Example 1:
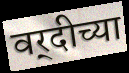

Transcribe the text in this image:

वर्दीच्या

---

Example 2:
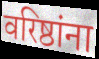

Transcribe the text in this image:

वरिष्ठांना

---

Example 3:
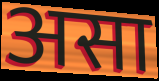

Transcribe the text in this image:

असा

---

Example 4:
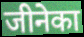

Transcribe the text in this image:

जीनेका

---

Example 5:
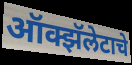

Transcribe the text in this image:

ऑक्झॅलेटाचे